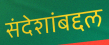
संदेशांबद्दल